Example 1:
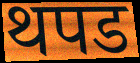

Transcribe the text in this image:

थपड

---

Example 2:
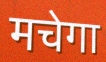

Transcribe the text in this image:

मचेगा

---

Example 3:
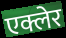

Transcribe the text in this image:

एक्लेर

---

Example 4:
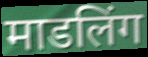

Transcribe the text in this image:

माडलिंग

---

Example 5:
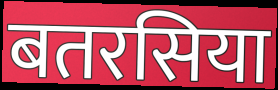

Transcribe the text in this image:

बतरसिया